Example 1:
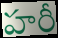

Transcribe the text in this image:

హరీ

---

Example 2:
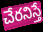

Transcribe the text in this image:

చేరనిస్తే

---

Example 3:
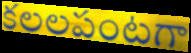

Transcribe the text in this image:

కలలపంటగా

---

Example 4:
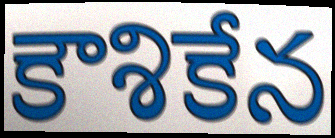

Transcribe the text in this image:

కౌశికేన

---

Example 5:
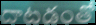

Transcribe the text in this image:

దాటడంతో